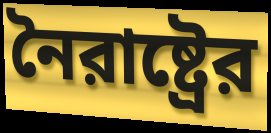
নৈরাষ্ট্রের